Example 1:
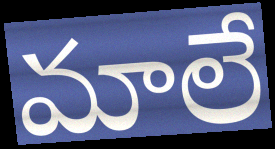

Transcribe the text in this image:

మాలే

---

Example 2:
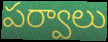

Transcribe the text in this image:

పర్వాలు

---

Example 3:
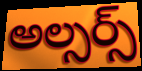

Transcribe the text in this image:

అల్సర్స్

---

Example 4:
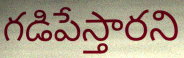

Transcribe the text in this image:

గడిపేస్తారని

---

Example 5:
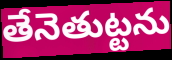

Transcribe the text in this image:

తేనెతుట్టను